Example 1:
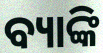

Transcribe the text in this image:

ବ୍ୟାଙ୍କି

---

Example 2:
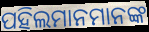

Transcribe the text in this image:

ପହିଲମାନମାନଙ୍କ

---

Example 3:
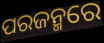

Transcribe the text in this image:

ପରଜନ୍ମରେ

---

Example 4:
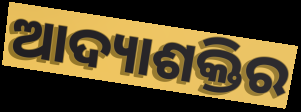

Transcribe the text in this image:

ଆଦ୍ୟାଶକ୍ତିର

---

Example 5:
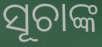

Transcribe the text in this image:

ସୂଚାଙ୍କ